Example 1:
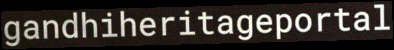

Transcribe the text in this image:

gandhiheritageportal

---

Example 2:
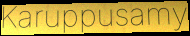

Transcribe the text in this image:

Karuppusamy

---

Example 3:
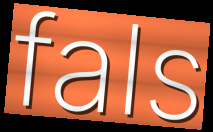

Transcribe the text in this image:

fals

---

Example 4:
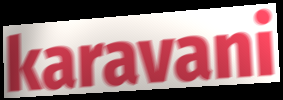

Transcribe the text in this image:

karavani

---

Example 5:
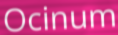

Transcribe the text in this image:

Ocinum